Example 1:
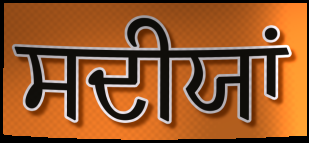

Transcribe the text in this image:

ਸਦੀਯਾਂ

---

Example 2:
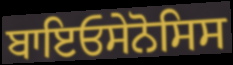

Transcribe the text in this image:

ਬਾਇਓਸੇਨੋਸਿਸ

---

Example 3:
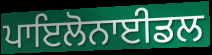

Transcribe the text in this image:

ਪਾਇਲੋਨਾਈਡਲ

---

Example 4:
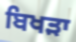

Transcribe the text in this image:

ਬਿਖੜਾ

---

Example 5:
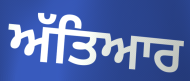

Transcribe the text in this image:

ਅੱਤਿਆਰ